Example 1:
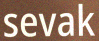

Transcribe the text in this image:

sevak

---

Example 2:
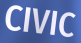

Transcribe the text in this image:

CIVIC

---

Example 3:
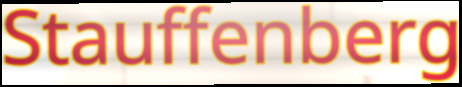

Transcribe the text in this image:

Stauffenberg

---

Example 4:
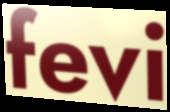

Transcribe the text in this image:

fevi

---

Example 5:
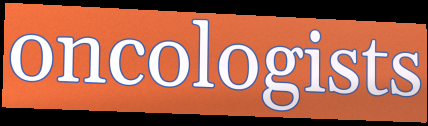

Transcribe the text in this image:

oncologists